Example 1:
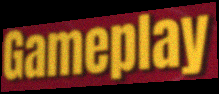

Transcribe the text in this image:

Gameplay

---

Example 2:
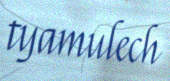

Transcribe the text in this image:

tyamulech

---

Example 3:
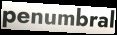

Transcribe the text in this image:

penumbral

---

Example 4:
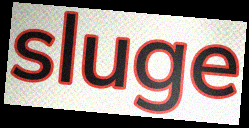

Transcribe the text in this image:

sluge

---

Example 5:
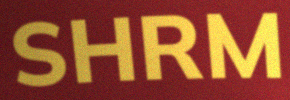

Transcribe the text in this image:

SHRM